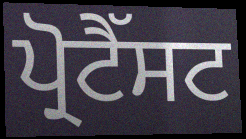
ਪ੍ਰੋਟੈੱਸਟ